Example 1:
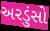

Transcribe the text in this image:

અરડુંસો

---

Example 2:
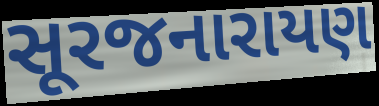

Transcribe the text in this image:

સૂરજનારાયણ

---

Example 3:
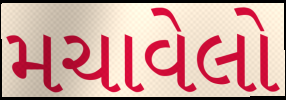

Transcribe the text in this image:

મચાવેલો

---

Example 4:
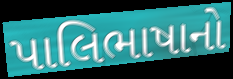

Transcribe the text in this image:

પાલિભાષાનો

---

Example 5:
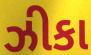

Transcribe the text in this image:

ઝીકા